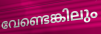
വേണ്ടെങ്കിലും